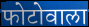
फोटोवाला